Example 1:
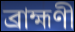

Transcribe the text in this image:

ব্রাহ্মণী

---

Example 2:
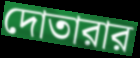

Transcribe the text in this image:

দোতারার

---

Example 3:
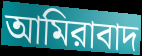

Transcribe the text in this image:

আমিরাবাদ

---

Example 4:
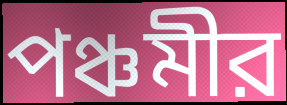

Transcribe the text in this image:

পঞ্চমীর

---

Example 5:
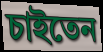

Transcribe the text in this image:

চাইতেন